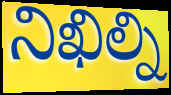
నిఖిల్ని